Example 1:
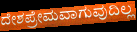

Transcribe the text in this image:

ದೇಶಪ್ರೇಮವಾಗುವುದಿಲ್ಲ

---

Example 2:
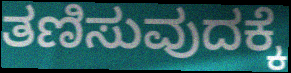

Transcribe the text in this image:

ತಣಿಸುವುದಕ್ಕೆ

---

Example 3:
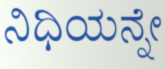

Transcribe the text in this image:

ನಿಧಿಯನ್ನೇ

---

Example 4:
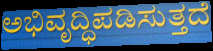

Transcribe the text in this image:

ಅಭಿವೃದ್ಧಿಪಡಿಸುತ್ತದೆ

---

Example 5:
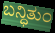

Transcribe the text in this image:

ಬನ್ಧಿತುಂ